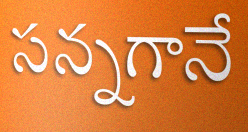
సన్నగానే